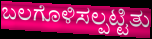
ಬಲಗೊಳಿಸಲ್ಪಟ್ಟಿತು